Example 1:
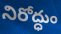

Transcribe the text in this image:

నిరోద్ధుం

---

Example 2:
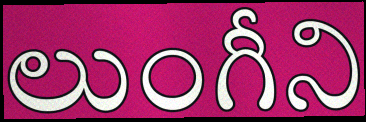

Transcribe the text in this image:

లుంగీని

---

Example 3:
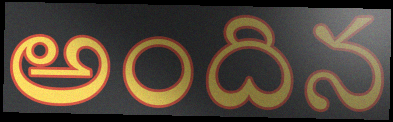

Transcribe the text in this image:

అందిన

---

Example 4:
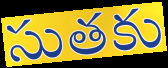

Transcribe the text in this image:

సుతకు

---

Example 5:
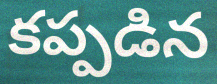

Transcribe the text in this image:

కప్పడిన